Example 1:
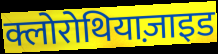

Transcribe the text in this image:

क्लोरोथियाज़ाइड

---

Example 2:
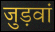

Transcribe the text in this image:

जुड़वां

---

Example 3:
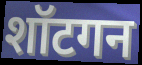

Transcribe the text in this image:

शॉटगन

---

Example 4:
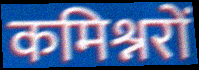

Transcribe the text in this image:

कमिश्नरों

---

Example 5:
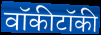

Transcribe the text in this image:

वॉकीटॉकी